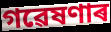
গৱেষণাৰ